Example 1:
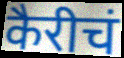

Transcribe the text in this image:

कैरीचं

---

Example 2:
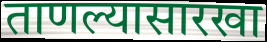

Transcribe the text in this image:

ताणल्यासारखा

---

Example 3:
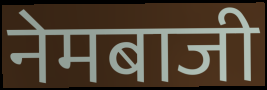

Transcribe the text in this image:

नेमबाजी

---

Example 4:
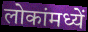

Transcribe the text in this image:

लोकांमध्यें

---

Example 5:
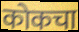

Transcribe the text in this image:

कोकचा